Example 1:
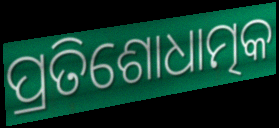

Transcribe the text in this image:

ପ୍ରତିଶୋଧାତ୍ମକ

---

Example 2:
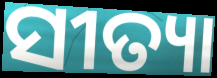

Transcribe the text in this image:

ସୀତ୍ୟା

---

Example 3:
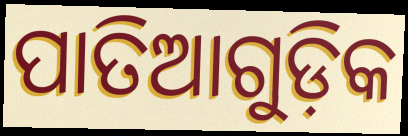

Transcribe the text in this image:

ପାତିଆଗୁଡ଼ିକ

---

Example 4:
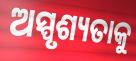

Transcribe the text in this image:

ଅସ୍ପୃଶ୍ୟତାକୁ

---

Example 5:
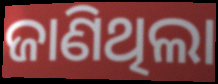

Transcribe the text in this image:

ଜାଣିଥିଲା